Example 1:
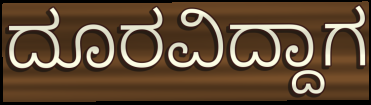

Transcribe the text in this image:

ದೂರವಿದ್ದಾಗ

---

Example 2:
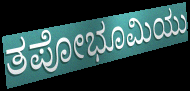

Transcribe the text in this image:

ತಪೋಭೂಮಿಯು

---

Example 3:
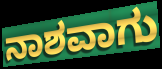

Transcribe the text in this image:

ನಾಶವಾಗು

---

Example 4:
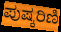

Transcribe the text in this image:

ಪುಷ್ಕರಿಣಿ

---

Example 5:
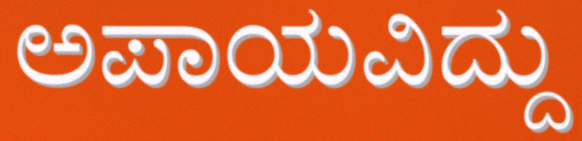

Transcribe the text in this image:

ಅಪಾಯವಿದ್ದು